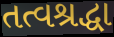
તત્વશ્રદ્ધા